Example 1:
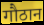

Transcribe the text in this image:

गौठान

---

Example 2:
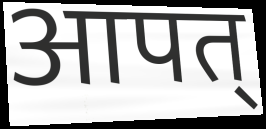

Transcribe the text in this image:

आपत्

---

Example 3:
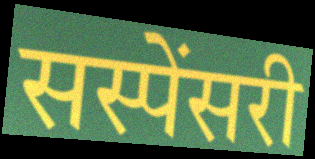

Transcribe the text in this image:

सस्पेंसरी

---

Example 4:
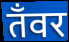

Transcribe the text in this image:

तँवर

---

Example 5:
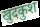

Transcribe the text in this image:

खुदकुश